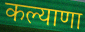
कल्याणा